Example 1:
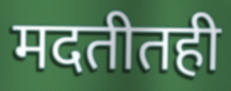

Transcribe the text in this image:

मदतीतही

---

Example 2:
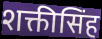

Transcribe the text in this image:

शक्तीसिंह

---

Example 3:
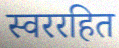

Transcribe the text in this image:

स्वररहित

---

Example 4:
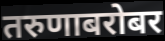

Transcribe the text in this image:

तरुणाबरोबर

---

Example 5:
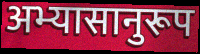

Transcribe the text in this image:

अभ्यासानुरूप